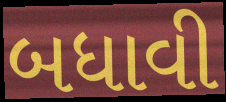
બધાવી